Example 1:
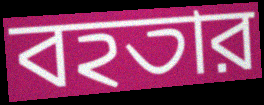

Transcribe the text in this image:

বহতার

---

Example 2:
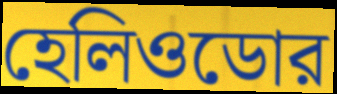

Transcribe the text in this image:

হেলিওডোর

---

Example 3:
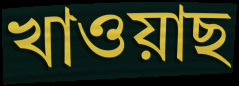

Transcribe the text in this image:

খাওয়াছ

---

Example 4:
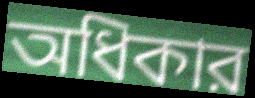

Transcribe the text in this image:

অধিকার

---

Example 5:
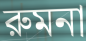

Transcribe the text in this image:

রুমনা